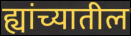
ह्यांच्यातील